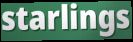
starlings